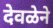
देवळेने